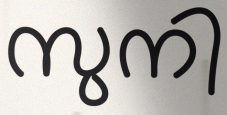
സുനി